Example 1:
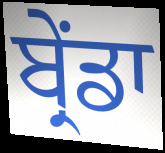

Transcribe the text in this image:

ਬ੍ਰੇਂਡਾ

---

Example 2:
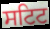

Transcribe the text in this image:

ਸਟਿਟ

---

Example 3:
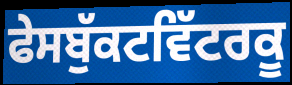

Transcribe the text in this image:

ਫੇਸਬੁੱਕਟਵਿੱਟਰਕੂ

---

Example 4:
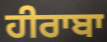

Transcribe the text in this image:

ਹੀਰਾਬਾ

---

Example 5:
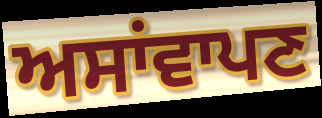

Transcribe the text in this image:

ਅਸਾਂਵਾਪਣ